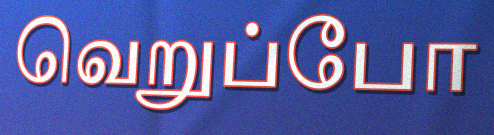
வெறுப்போ